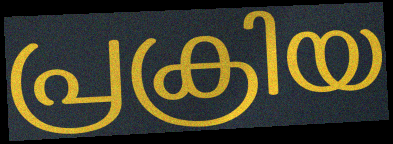
പ്രക്രിയ